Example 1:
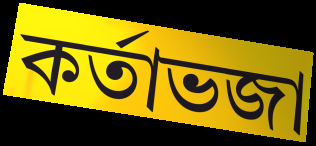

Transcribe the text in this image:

কর্তাভজা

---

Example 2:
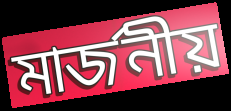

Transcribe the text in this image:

মার্জনীয়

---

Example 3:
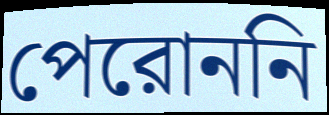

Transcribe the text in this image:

পেরোননি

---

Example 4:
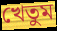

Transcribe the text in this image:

খেতুম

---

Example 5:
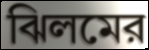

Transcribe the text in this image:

ঝিলমের